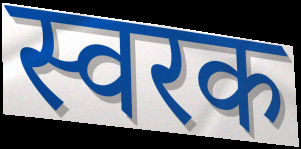
स्वरक